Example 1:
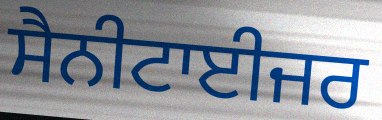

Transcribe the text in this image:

ਸੈਨੀਟਾਈਜਰ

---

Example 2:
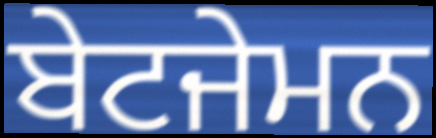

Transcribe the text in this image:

ਬੇਟਜੇਮਨ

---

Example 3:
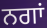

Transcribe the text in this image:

ਨਗਾਂ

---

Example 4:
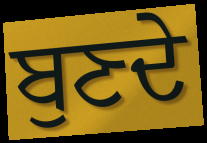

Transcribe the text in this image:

ਬੁਣਦੇ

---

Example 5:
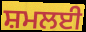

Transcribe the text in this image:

ਸ਼ਮਲਈ